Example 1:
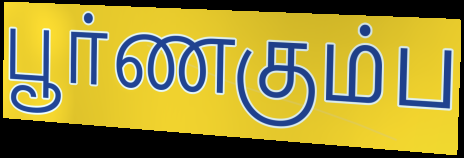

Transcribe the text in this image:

பூர்ணகும்ப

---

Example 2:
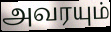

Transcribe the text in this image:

அவரயும்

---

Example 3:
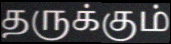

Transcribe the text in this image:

தருக்கும்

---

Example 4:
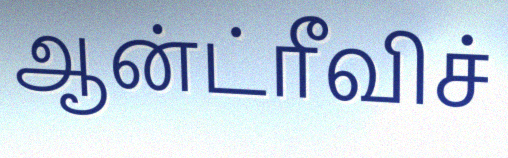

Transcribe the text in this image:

ஆன்ட்ரீவிச்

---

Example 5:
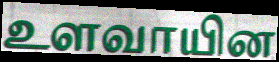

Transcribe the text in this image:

உளவாயின